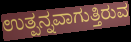
ಉತ್ಪನ್ನವಾಗುತ್ತಿರುವ